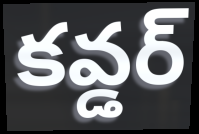
కవ్డర్